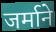
जर्माने